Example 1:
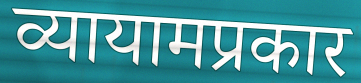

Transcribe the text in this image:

व्यायामप्रकार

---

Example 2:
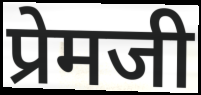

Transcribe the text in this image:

प्रेमजी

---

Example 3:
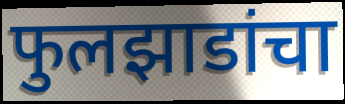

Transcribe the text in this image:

फुलझाडांचा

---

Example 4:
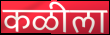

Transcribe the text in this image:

कळीला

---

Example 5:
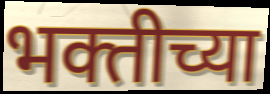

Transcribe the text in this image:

भक्‍तीच्या